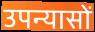
उपन्यासों